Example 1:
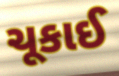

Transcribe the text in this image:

ચૂકાઈ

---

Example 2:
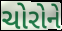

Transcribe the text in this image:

ચોરોને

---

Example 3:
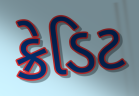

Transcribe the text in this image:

ક્રેડિટ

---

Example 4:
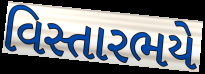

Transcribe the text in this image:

વિસ્તારભયે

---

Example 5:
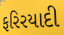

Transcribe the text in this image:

ફરિરયાદી